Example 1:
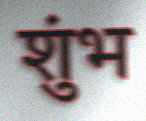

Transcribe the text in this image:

शुंभ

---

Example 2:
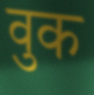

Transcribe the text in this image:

वुक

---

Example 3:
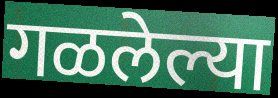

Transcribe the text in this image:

गळलेल्या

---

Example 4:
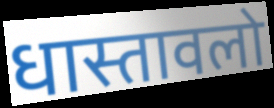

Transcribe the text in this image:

धास्तावलो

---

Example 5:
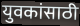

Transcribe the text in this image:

युवकांसाठी